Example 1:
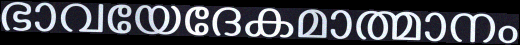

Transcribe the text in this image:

ഭാവയേദേകമാത്മാനം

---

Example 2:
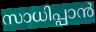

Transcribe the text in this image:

സാധിപ്പാൻ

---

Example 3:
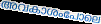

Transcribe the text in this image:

അവകാശംപോലെ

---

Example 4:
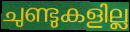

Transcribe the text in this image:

ചുണ്ടുകളില്ല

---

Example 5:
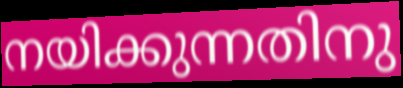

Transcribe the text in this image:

നയിക്കുന്നതിനു